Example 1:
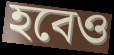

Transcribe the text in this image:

হবেও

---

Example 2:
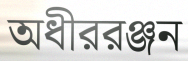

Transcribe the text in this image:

অধীররঞ্জন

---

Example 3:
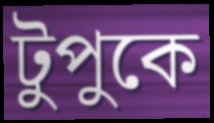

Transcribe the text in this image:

টুপুকে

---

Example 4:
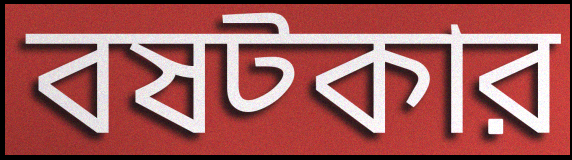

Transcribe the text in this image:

বষট্কার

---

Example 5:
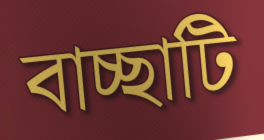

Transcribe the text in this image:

বাচ্ছাটি